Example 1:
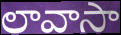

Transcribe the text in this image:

లావాసా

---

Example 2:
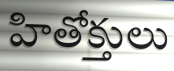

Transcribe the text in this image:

హితోక్తులు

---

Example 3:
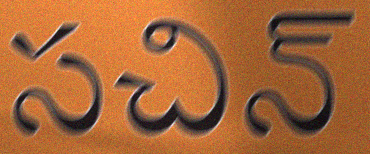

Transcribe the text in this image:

సచిన్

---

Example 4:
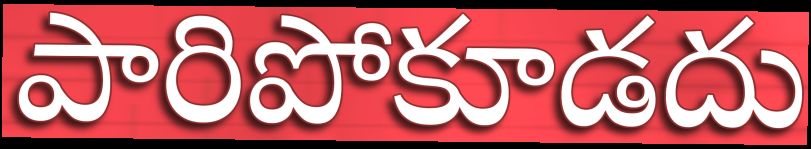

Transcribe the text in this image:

పారిపోకూడదు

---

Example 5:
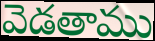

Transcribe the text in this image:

వెడతాము